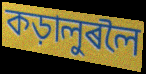
কড়ালুৰলৈ